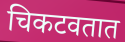
चिकटवतात